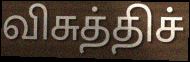
விசுத்திச்